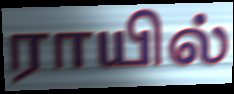
ராயில்